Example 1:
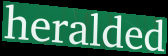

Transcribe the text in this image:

heralded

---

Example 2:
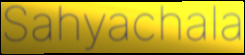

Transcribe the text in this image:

Sahyachala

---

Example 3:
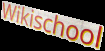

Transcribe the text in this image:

Wikischool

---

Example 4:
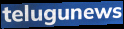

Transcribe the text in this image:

telugunews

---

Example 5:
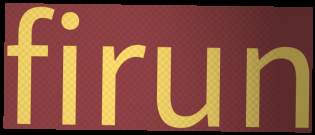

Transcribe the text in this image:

firun